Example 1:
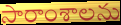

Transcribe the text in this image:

సారాంశాలను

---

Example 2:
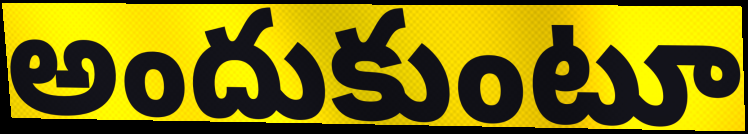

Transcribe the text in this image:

అందుకుంటూ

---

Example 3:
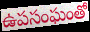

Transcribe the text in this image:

ఉపసంఘంతో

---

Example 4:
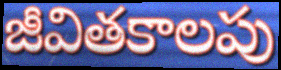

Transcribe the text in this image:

జీవితకాలపు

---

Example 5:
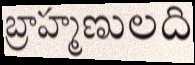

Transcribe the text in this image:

బ్రాహ్మణులది